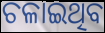
ଚଳାଇଥିବ